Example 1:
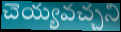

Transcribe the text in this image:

చెయ్యవచ్చని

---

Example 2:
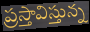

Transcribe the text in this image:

ప్రస్తావిస్తున్న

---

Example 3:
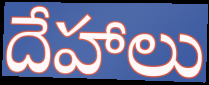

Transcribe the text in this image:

దేహాలు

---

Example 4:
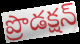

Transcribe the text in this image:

ప్రొడక్షన్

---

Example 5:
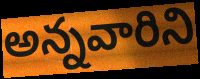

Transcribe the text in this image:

అన్నవారిని